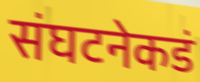
संघटनेकडं